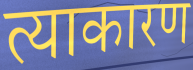
त्याकारण